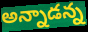
అన్నాడన్న